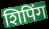
शिपिंग